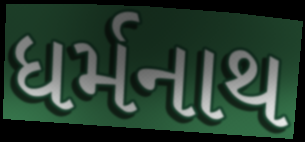
ધર્મનાથ